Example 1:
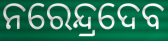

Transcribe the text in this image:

ନରେନ୍ଦ୍ରଦେବ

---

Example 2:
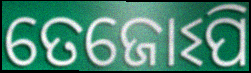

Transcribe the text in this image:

ତେଜୋଽପି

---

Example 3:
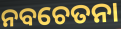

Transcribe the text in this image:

ନବଚେତନା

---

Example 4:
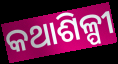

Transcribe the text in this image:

କଥାଶିଳ୍ପୀ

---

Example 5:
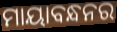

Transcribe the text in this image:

ମାୟାବନ୍ଧନର